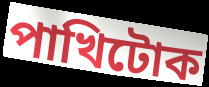
পাখিটোক